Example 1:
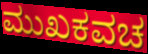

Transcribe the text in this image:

ಮುಖಕವಚ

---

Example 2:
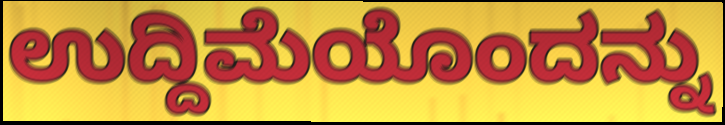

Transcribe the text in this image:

ಉದ್ದಿಮೆಯೊಂದನ್ನು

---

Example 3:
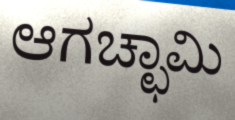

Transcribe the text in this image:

ಆಗಚ್ಛಾಮಿ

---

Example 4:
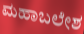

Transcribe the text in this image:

ಮಹಾಬಲೇಶ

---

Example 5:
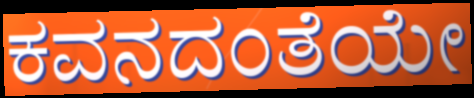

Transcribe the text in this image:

ಕವನದಂತೆಯೇ